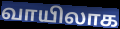
வாயிலாக